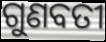
ଗୁଣବତୀ